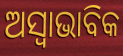
ଅସ୍ଵାଭାବିକ